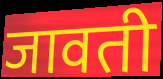
जावती